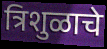
त्रिशुळाचे